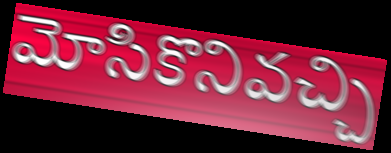
మోసికొనివచ్చి